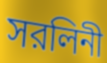
সরলিনী